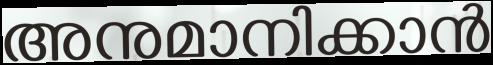
അനുമാനിക്കാൻ